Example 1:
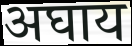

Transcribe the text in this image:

अघाय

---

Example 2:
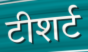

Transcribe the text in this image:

टीशर्ट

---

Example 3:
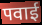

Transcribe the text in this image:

पवाई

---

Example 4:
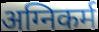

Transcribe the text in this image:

अग्निकर्म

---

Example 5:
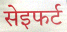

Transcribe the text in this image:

सेइफर्ट